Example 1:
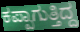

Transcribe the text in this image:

ಕಪ್ಪಾಗುತ್ತಿದ್ದ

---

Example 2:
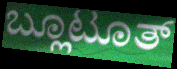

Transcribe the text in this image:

ಬ್ಲೂಟೂತ್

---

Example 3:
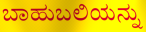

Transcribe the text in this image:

ಬಾಹುಬಲಿಯನ್ನು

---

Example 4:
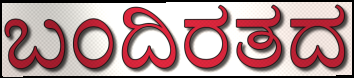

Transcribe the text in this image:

ಬಂದಿರತದ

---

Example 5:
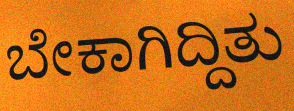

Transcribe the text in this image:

ಬೇಕಾಗಿದ್ದಿತು